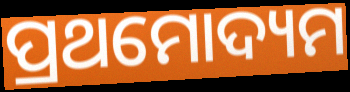
ପ୍ରଥମୋଦ୍ୟମ